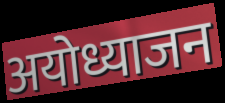
अयोध्याजन